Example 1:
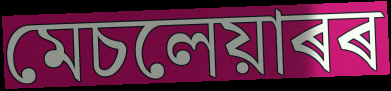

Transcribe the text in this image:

মেচলেয়াৰৰ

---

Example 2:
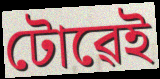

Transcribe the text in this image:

টোৱেই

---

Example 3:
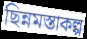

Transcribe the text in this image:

ছিন্নমস্তাকল্প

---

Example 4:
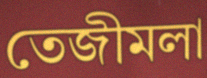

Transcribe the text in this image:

তেজীমলা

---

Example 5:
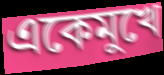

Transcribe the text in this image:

একেমুখে